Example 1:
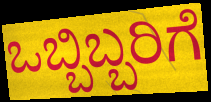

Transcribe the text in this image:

ಒಬ್ಬಿಬ್ಬರಿಗೆ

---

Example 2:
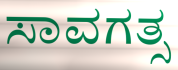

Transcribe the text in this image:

ಸಾವಗತ್ಸ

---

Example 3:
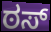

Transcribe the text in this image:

ಠಸ್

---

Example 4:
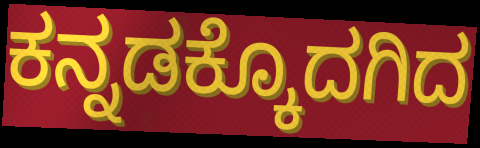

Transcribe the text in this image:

ಕನ್ನಡಕ್ಕೊದಗಿದ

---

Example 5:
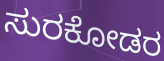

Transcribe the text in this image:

ಸುರಕೋಡರ